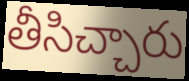
తీసిచ్చారు